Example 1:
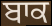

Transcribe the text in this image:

ਬਾਕ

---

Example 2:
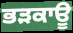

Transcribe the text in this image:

ਭੜਕਾਊ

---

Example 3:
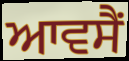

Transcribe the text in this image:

ਆਵਸੈਂ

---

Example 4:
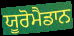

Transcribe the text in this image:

ਯੂਰੋਮੈਡਾਨ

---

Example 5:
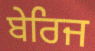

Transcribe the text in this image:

ਬੇਰਿਜ